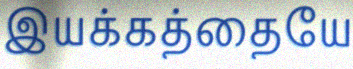
இயக்கத்தையே